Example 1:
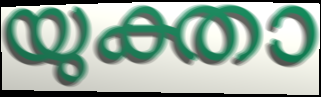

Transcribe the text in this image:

യുക്താ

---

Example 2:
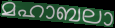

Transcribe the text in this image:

മഹാബലാ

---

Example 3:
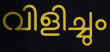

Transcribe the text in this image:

വിളിച്ചും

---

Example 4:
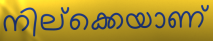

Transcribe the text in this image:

നില്ക്കെയാണ്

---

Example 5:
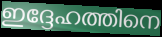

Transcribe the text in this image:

ഇദ്ദേഹത്തിനെ